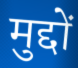
मुद्दों